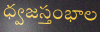
ధ్వజస్తంభాల